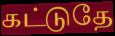
கட்டுதே